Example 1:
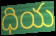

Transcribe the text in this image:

ధియ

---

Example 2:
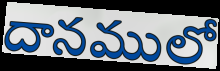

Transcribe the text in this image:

దానములో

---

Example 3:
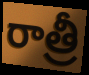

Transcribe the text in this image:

రాత్రీ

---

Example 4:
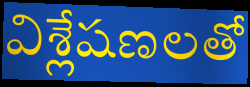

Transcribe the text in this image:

విశ్లేషణలతో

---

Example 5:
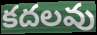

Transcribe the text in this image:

కదలవు